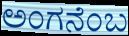
ಅಂಗನೆಂಬ